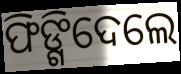
ଫିଙ୍ଗିଦେଲେ